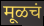
मूळचं